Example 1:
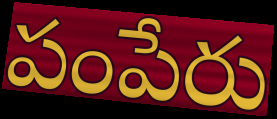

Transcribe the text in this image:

పంపేరు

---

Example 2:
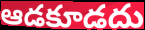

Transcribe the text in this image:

ఆడకూడదు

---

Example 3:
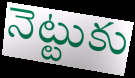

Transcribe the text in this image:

నెట్టుకు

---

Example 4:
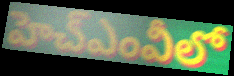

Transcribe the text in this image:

హెచ్ఎంవీలో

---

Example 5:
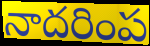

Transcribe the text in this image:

నాదరింప